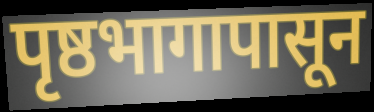
पृष्ठभागापासून